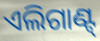
ଏଲିଗାଣ୍ଟ୍